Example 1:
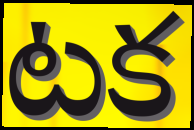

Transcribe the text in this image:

టక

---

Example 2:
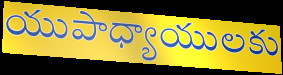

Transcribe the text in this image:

యుపాధ్యాయులకు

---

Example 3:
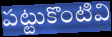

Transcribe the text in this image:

పట్టుకొంటివి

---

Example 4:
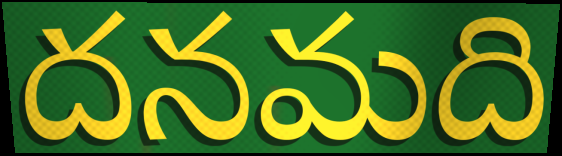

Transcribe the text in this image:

దనమది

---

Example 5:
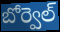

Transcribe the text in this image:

బోర్వెల్